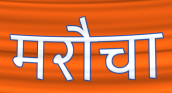
मरौचा